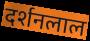
दर्शनलाल